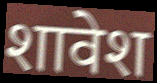
शावेश